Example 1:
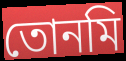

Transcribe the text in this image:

তোনমি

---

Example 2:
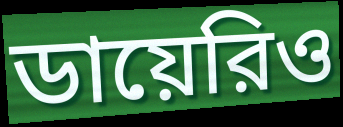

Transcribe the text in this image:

ডায়েরিও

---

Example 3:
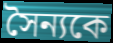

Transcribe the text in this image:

সৈন্যকে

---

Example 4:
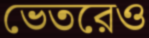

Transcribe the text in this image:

ভেতরেও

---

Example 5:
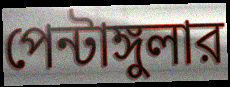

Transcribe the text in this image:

পেন্টাঙ্গুলার